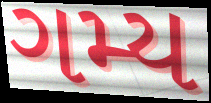
ગમ્ય